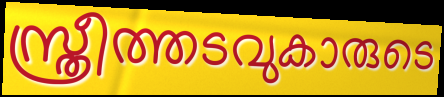
സ്ത്രീത്തടവുകാരുടെ